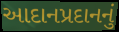
આદાનપ્રદાનનું